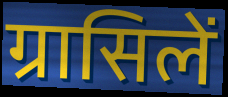
ग्रासिलें